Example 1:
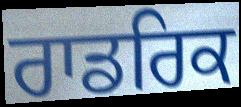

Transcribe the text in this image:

ਰਾਡਰਿਕ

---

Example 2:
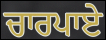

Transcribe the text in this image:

ਚਾਰਪਾਏ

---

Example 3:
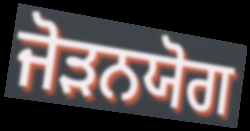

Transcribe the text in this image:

ਜੋੜਨਯੋਗ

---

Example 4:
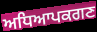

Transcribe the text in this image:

ਅਧਿਆਪਕਗਣ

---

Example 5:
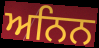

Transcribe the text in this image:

ਅਨਿਨ